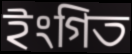
ইংগিত